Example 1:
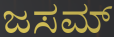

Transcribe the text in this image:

ಜಸಮ್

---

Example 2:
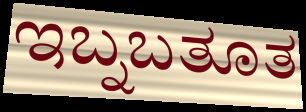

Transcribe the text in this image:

ಇಬ್ನಬತೂತ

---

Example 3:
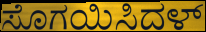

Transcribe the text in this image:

ಸೊಗಯಿಸಿದಳ್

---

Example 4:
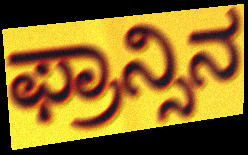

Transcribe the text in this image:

ಫ್ರಾನ್ಸಿನ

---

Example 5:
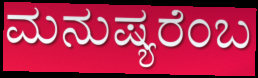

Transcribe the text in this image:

ಮನುಷ್ಯರೆಂಬ